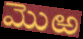
మొఱ